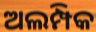
ଅଲମ୍ପିକ